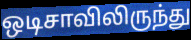
ஒடிசாவிலிருந்து